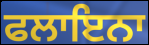
ਫਲਾਇਨਾ